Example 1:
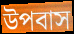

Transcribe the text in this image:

উপবাস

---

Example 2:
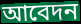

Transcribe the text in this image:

আবেদন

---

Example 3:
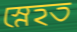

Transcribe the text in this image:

স্নেহত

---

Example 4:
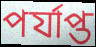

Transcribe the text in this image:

পৰ্যাপ্ত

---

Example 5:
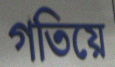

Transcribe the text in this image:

গতিয়ে